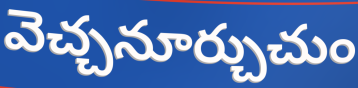
వెచ్చనూర్చుచుం